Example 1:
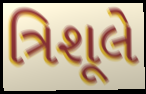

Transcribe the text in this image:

ત્રિશૂલે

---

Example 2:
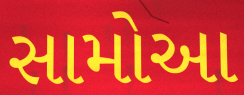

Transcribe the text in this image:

સામોઆ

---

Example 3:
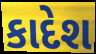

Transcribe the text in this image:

કાદેશ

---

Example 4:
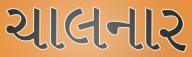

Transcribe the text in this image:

ચાલનાર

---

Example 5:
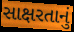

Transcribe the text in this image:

સાક્ષરતાનું